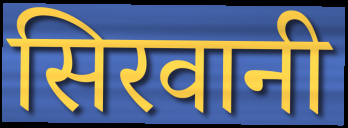
सिरवानी